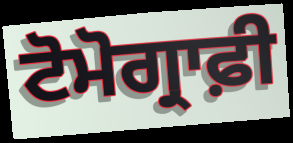
ਟੋਮੋਗ੍ਰਾਫ਼ੀ